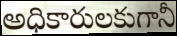
అధికారులకుగానీ